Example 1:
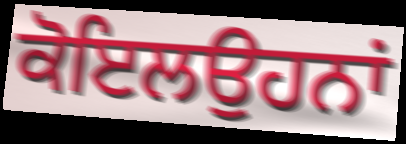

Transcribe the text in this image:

ਕੋਇਲਉਹਨਾਂ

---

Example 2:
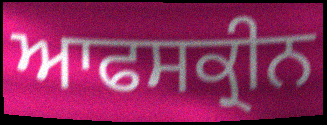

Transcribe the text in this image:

ਆਫਸਕ੍ਰੀਨ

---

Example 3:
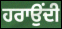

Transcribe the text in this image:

ਹਰਾਉਂਦੀ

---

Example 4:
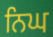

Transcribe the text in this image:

ਨਿਘ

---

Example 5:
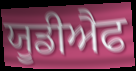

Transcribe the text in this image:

ਯੂਡੀਐਫ